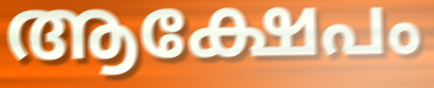
ആക്ഷേപം